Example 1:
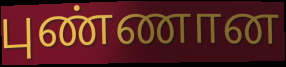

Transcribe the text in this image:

புண்ணான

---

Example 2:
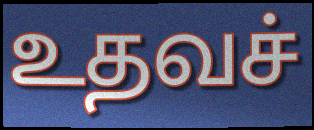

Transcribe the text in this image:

உதவச்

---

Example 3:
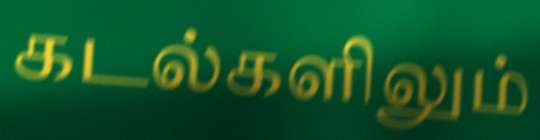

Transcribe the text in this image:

கடல்களிலும்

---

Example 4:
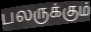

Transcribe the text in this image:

பலருக்கும்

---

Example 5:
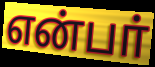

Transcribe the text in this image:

என்பர்